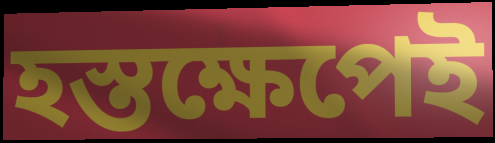
হস্তক্ষেপেই